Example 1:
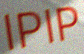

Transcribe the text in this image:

IPIP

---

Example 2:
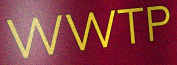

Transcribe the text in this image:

WWTP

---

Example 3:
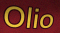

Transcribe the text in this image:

Olio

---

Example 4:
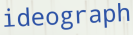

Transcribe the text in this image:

ideograph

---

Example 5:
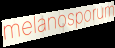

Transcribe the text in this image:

melanosporum